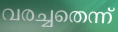
വരച്ചതെന്ന്